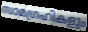
സാമഗ്രഹികളും